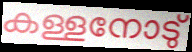
കള്ളനോടു്